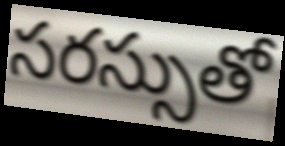
సరస్సుతో